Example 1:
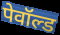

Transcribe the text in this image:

पेवॉल्ड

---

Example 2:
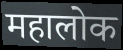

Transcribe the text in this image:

महालोक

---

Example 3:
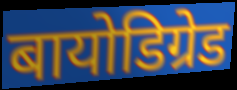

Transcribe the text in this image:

बायोडिग्रेड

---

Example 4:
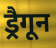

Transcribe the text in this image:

ड्रैगून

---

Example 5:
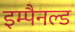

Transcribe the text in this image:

इम्पैनल्ड